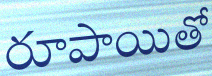
రూపాయితో